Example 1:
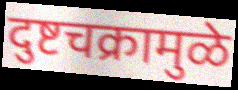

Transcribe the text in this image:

दुष्टचक्रामुळे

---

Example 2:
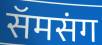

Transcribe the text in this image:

सॅमसंग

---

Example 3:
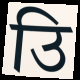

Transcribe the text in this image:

उि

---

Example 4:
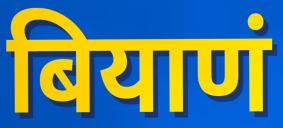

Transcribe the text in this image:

बियाणं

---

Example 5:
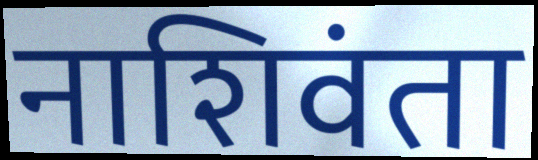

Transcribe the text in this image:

नाशिवंता